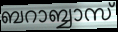
ബറാബ്ബാസ്